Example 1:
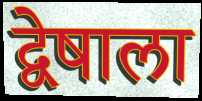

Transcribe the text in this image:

द्वेषाला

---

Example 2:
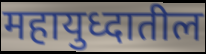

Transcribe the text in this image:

महायुध्दातील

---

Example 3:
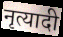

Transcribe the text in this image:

नृत्यादी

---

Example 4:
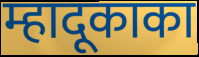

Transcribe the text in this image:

म्हादूकाका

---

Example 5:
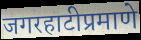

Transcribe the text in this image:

जगरहाटीप्रमाणे